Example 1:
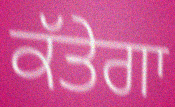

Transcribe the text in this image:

ਕੱਤੇਗਾ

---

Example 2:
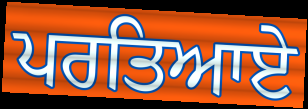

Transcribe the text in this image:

ਪਰਤਿਆਏ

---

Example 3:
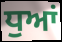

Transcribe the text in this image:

ਧੁਆਂ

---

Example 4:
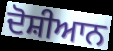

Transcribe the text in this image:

ਦੋਸ਼ੀਆਨ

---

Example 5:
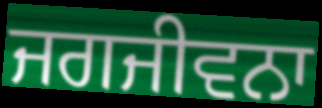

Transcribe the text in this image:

ਜਗਜੀਵਨਾ